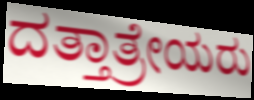
ದತ್ತಾತ್ರೇಯರು